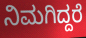
ನಿಮಗಿದ್ದರೆ